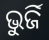
ଭୁର୍ଜି